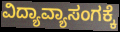
ವಿದ್ಯಾವ್ಯಾಸಂಗಕ್ಕೆ